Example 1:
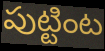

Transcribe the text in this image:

పుట్టింట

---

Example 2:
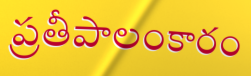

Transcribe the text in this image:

ప్రతీపాలంకారం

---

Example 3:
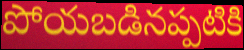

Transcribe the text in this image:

పోయబడినప్పటికి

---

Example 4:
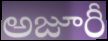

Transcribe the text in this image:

అజూరీ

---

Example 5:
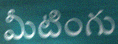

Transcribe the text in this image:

మీటింగు